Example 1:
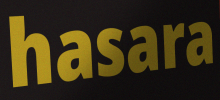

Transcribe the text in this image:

hasara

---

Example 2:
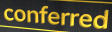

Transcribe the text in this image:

conferred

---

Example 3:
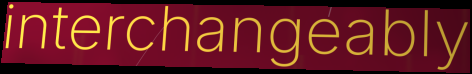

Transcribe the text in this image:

interchangeably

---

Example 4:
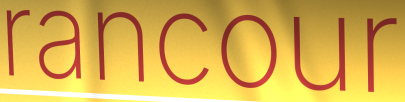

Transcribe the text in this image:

rancour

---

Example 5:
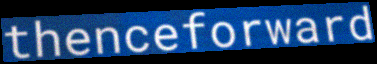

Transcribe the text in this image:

thenceforward